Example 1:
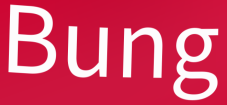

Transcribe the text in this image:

Bung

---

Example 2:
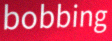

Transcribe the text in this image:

bobbing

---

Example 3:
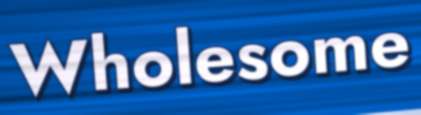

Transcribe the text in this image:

Wholesome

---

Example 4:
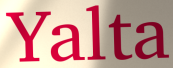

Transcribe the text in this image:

Yalta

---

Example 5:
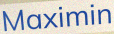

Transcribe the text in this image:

Maximin